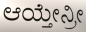
ಆಯ್ತೇನ್ರೀ